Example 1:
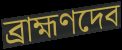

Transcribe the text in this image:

ব্রাহ্মণদেব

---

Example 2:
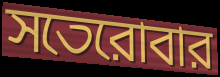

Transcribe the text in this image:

সতেরোবার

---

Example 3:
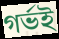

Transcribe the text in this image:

গর্ভই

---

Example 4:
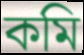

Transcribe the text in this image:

কমি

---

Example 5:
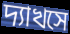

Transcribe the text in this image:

দ্যাখসে